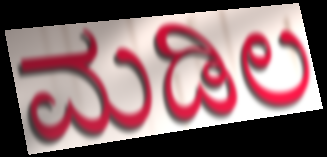
ಮಡಿಲ